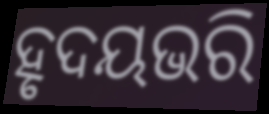
ହୃଦୟଭରି